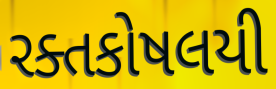
રક્તકોષલયી